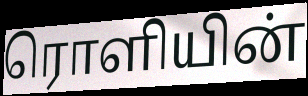
ரொளியின்